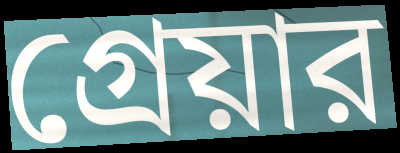
গ্রেয়ার